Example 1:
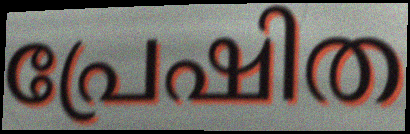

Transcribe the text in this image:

പ്രേഷിത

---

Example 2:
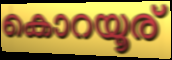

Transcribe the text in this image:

കൊറയൂര്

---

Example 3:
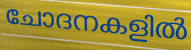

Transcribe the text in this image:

ചോദനകളിൽ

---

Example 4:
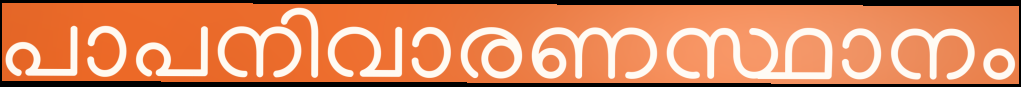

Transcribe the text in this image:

പാപനിവാരണസ്ഥാനം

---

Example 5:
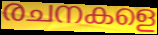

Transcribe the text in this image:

രചനകളെ